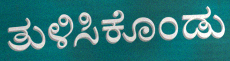
ತುಳಿಸಿಕೊಂಡು